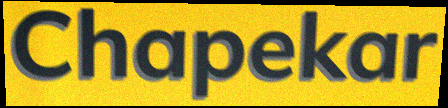
Chapekar